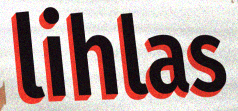
lihlas